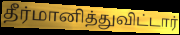
தீர்மானித்துவிட்டார்